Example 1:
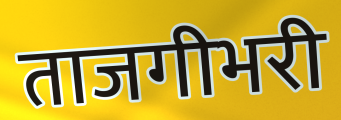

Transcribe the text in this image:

ताजगीभरी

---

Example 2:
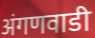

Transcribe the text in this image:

अंगणवाडी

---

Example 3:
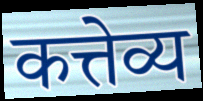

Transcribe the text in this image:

कत्तेव्य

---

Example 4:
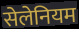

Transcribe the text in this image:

सेलेनियम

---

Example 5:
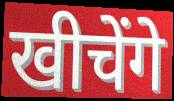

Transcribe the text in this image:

खीचेंगे